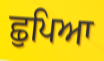
ਛੁਪਿਆ